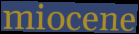
miocene